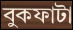
বুকফাটা